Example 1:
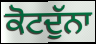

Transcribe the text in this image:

ਕੋਟਦੁੱਨਾ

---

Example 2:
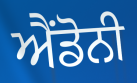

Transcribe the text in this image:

ਐਂਡੋਨੀ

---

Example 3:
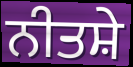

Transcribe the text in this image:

ਨੀਤਸ਼ੇ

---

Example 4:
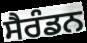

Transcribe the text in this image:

ਸੈਰੰਡਨ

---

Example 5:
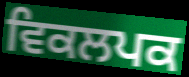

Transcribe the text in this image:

ਵਿਕਲਪਕ